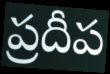
ప్రదీప